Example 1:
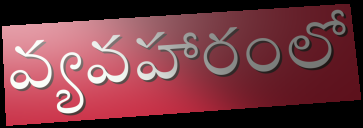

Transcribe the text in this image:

వ్యవహారంలో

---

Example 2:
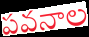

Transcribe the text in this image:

పవనాల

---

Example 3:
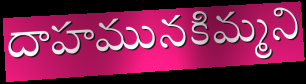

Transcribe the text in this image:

దాహమునకిమ్మని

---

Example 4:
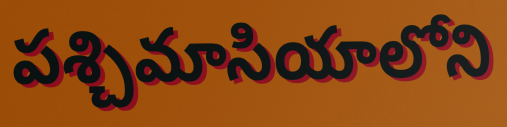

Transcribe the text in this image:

పశ్చిమాసియాలోని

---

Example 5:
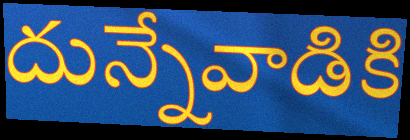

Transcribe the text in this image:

దున్నేవాడికి